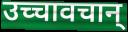
उच्चावचान्